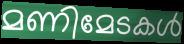
മണിമേടകൾ